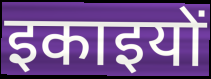
इकाइयों